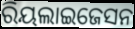
ରିୟଲାଇଜେସନ